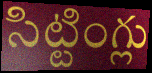
సిట్టింగ్లు